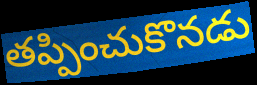
తప్పించుకొనడు